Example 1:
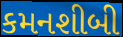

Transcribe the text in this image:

કમનશીબી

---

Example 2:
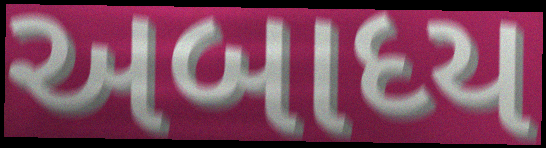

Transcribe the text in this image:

અબાધ્ય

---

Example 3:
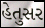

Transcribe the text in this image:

હેતુસર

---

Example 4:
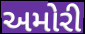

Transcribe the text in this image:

અમોરી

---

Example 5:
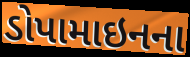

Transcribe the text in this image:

ડોપામાઇનના